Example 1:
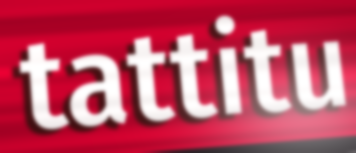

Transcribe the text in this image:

tattitu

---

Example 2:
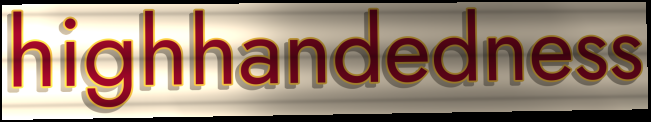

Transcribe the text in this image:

highhandedness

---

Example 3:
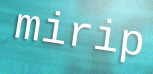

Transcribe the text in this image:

mirip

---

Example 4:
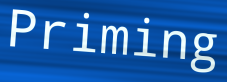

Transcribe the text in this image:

Priming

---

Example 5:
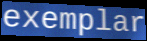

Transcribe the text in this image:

exemplar